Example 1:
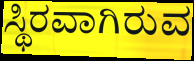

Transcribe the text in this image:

ಸ್ಥಿರವಾಗಿರುವ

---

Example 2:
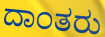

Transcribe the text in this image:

ದಾಂತರು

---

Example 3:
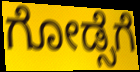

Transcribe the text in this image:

ಗೋಡ್ಸೆಗೆ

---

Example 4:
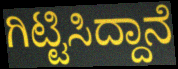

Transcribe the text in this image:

ಗಿಟ್ಟಿಸಿದ್ದಾನೆ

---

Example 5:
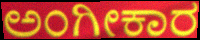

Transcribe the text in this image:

ಅಂಗೀಕಾರ